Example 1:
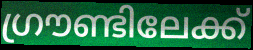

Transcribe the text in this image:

ഗ്രൗണ്ടിലേക്ക്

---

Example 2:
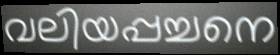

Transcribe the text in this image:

വലിയപ്പച്ചനെ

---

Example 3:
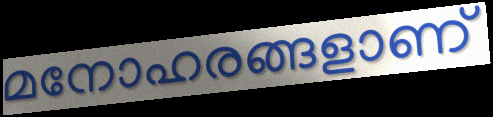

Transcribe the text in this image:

മനോഹരങ്ങളാണ്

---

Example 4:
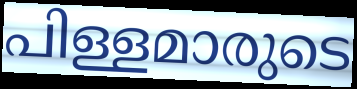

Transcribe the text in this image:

പിള്ളമാരുടെ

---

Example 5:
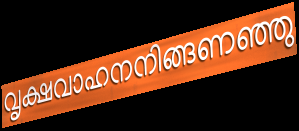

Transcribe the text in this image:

വൃക്ഷവാഹനനിങ്ങണഞ്ഞു